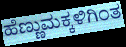
ಹೆಣ್ಣುಮಕ್ಕಳಿಗಿಂತ